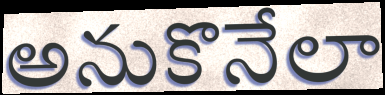
అనుకొనేలా